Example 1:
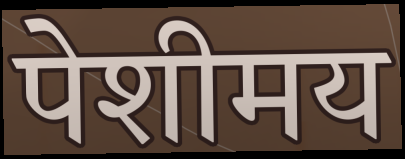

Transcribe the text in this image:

पेशीमय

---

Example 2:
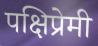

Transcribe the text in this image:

पक्षिप्रेमी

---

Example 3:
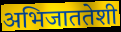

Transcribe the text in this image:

अभिजाततेशी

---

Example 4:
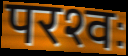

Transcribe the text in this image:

परश्वः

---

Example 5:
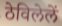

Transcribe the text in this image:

ठेविलेलें